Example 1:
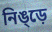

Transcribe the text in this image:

নিঙ্ড়ে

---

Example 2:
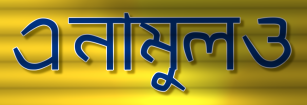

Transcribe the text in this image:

এনামুলও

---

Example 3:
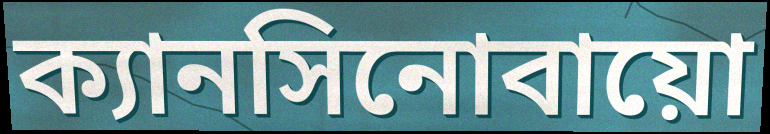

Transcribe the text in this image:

ক্যানসিনোবায়ো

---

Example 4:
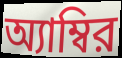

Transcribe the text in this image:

অ্যাম্বির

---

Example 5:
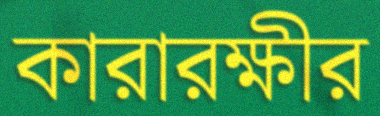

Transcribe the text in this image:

কারারক্ষীর